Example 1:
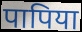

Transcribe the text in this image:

पापिया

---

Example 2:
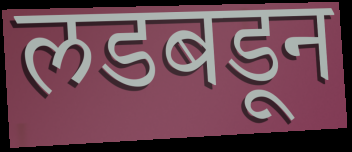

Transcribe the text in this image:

लडबडून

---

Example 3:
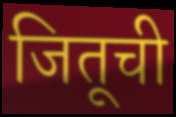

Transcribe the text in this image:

जितूची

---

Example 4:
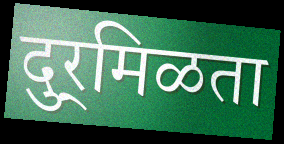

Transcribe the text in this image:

दुर्मिळता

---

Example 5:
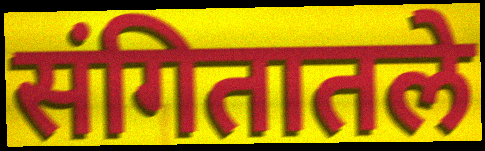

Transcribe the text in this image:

संगितातले